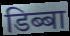
डिब्बा